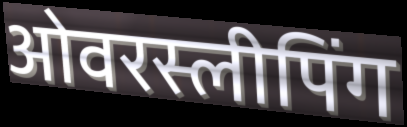
ओवरस्लीपिंग